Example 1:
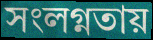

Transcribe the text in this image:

সংলগ্নতায়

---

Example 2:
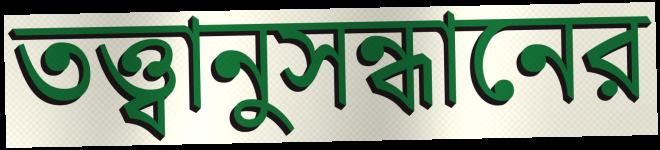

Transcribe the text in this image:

তত্ত্বানুসন্ধানের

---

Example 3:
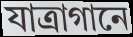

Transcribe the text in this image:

যাত্রাগানে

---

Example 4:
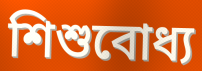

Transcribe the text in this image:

শিশুবোধ্য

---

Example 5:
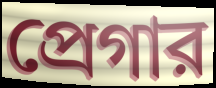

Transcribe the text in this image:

প্রেগার